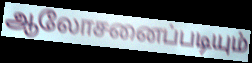
ஆலோசனைப்படியும்